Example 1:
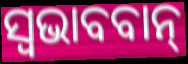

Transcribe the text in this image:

ସ୍ଵଭାବବାନ୍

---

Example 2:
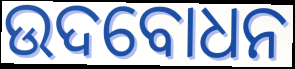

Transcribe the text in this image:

ଉଦବୋଧନ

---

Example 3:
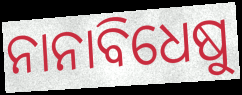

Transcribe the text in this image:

ନାନାବିଧେଷୁ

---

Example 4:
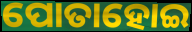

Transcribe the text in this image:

ପୋତାହୋଇ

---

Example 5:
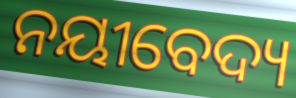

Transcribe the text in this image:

ନୟୀବେଦ୍ୟ